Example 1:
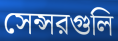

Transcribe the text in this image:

সেন্সরগুলি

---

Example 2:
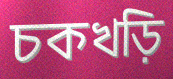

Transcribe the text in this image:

চকখড়ি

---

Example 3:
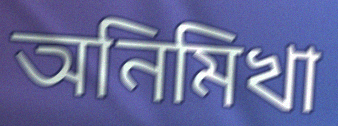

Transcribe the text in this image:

অনিমিখা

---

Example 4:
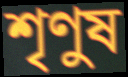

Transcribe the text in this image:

শৃণুষ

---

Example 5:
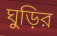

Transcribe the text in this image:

ঘুড়ির